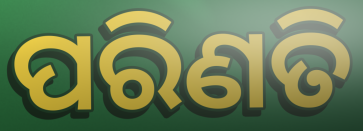
ପରିଣତି